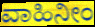
ವಾಹಿನೀಂ